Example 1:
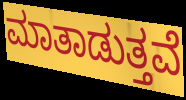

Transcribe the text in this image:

ಮಾತಾಡುತ್ತವೆ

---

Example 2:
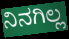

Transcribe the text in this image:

ನಿನಗಿಲ್ಲ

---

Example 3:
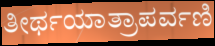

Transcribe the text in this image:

ತೀರ್ಥಯಾತ್ರಾಪರ್ವಣಿ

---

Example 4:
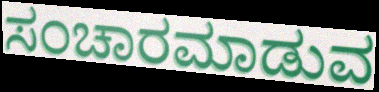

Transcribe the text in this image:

ಸಂಚಾರಮಾಡುವ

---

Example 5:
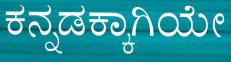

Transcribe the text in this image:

ಕನ್ನಡಕ್ಕಾಗಿಯೇ